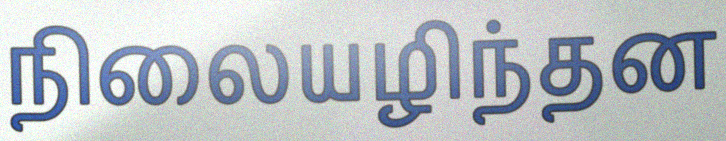
நிலையழிந்தன